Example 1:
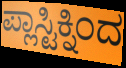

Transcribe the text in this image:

ಪ್ಲಾಸ್ಟಿಕ್ನಿಂದ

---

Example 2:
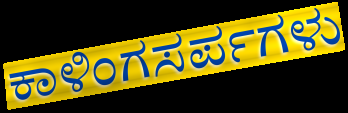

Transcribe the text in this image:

ಕಾಳಿಂಗಸರ್ಪಗಳು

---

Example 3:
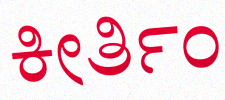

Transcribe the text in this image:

ಕೀರ್ತಿಂ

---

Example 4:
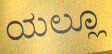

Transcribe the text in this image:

ಯಲ್ಲೂ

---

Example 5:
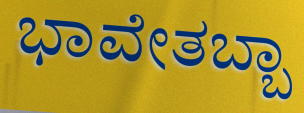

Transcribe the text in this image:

ಭಾವೇತಬ್ಬಾ